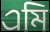
এমি